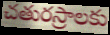
చతురస్రాలకు